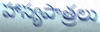
హాస్యపాత్రలు